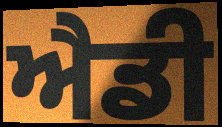
ਐਡੀ